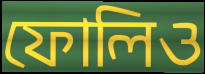
ফোলিও